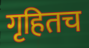
गृहितच